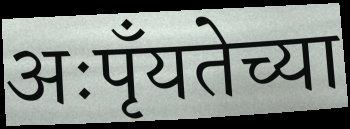
अःपृँयतेच्या